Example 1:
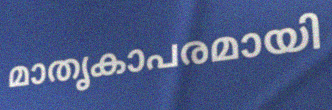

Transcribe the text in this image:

മാതൃകാപരമായി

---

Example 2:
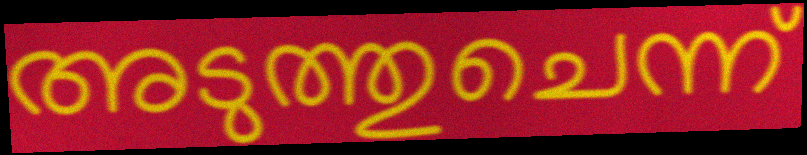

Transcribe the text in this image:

അടുത്തുചെന്ന്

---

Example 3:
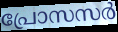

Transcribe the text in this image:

പ്രോസസർ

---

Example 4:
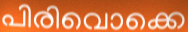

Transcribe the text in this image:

പിരിവൊക്കെ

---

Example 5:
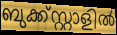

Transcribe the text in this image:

ബുക്ക്സ്റ്റാളിൽ